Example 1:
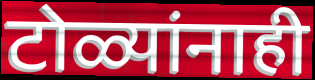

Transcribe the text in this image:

टोळ्यांनाही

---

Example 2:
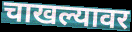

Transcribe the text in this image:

चाखल्यावर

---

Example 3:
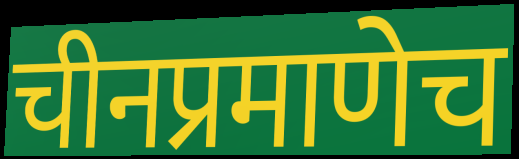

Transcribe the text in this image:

चीनप्रमाणेच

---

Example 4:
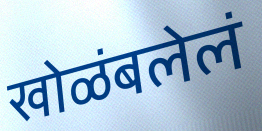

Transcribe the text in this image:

खोळंबलेलं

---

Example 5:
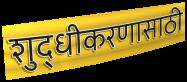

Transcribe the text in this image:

शुद्धीकरणासाठी